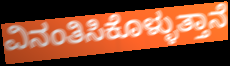
ವಿನಂತಿಸಿಕೊಳ್ಳುತ್ತಾನೆ